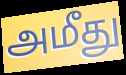
அமீது